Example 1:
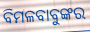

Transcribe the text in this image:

ବିମଳବାବୁଙ୍କର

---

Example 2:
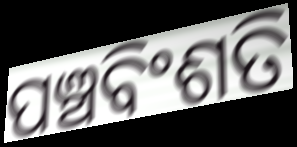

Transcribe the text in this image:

ପଞ୍ଚବିଂଶତି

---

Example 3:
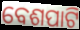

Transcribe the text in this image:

ବେଶପାଟି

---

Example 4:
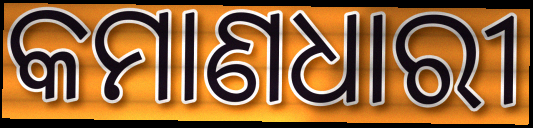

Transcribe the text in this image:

କମାଣଧାରୀ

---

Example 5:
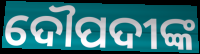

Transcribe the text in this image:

ଦୌପଦୀଙ୍କ